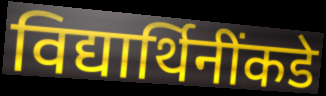
विद्यार्थिनींकडे